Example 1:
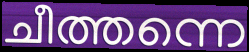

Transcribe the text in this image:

ചീത്തന്നെ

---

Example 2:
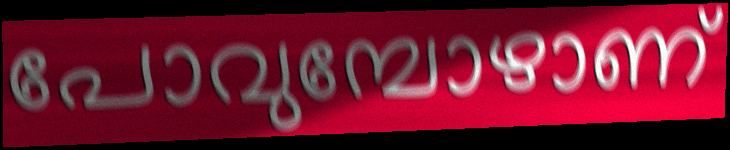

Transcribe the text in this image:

പോവുമ്പോഴാണ്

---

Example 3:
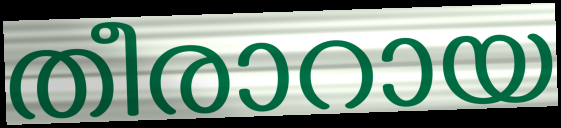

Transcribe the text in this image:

തീരാറായ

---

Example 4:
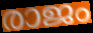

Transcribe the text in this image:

രാജം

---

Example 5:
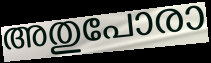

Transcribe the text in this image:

അതുപോരാ